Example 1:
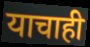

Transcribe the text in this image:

याचाही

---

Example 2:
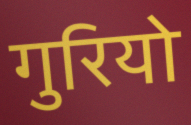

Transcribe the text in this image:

गुरियो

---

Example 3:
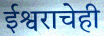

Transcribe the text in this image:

ईश्वराचेही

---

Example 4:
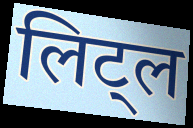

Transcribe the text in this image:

लिट्ल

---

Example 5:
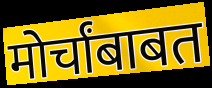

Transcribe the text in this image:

मोर्चांबाबत